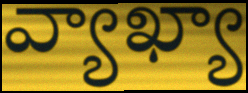
వ్యాఖ్యా